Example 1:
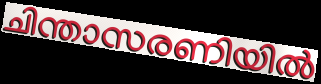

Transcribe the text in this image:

ചിന്താസരണിയിൽ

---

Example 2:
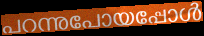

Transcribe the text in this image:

പറന്നുപോയപ്പോൾ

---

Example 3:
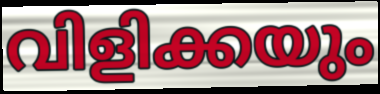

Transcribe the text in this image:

വിളിക്കയും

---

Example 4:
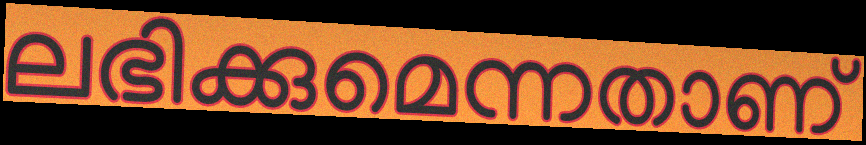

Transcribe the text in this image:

ലഭിക്കുമെന്നതാണ്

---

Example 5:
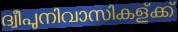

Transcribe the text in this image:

ദ്വീപുനിവാസികള്ക്ക്